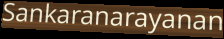
Sankaranarayanan